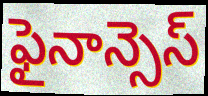
ఫైనాన్సెస్